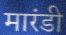
मारंडी